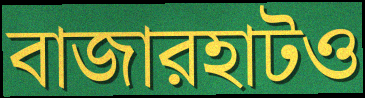
বাজারহাটও